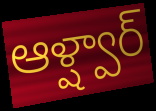
ఆళ్ష్వార్